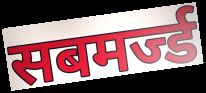
सबमर्ज्ड